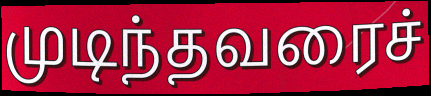
முடிந்தவரைச்